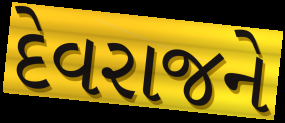
દેવરાજને